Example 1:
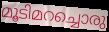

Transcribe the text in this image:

മൂടിമറച്ചൊരു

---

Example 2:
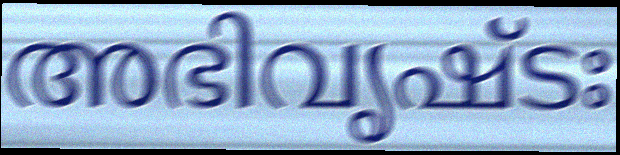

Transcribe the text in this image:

അഭിവൃഷ്ടഃ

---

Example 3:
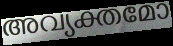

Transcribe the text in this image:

അവ്യക്തമോ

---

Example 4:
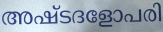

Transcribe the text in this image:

അഷ്ടദളോപരി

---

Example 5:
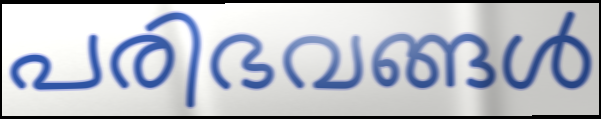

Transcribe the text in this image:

പരിഭവങ്ങൾ